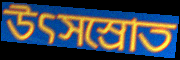
উৎসস্রোত